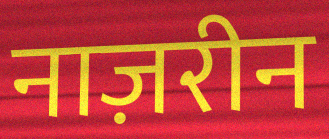
नाज़रीन